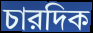
চারদিক